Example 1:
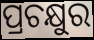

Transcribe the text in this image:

ପ୍ରଚକ୍ଷୁର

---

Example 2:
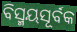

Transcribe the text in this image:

ବିସ୍ମୟସୂର୍ବକ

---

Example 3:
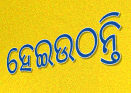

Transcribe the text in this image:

ହେଇଉଠନ୍ତି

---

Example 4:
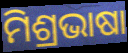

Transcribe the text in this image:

ମିଶ୍ରଭାଷା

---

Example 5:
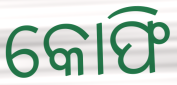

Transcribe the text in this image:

କୋଫି